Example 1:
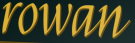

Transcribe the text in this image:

rowan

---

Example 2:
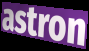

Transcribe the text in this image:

astron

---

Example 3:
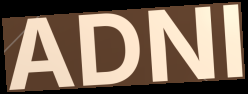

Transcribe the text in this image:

ADNI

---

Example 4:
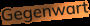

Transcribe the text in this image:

Gegenwart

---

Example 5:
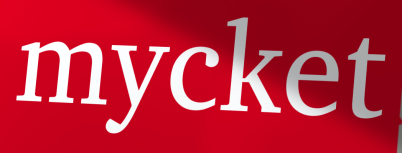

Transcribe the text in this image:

mycket